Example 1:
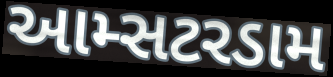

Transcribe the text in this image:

આમ્સટરડામ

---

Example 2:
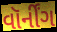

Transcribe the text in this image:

વૉર્નીંગ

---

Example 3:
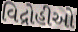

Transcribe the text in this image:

વિદ્રોહીઓ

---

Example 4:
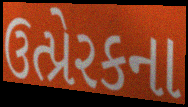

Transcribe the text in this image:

ઉત્પ્રેરકના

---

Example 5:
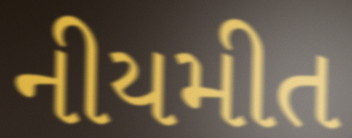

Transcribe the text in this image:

નીયમીત